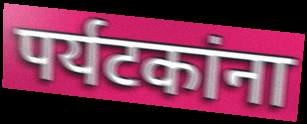
पर्यटकांना